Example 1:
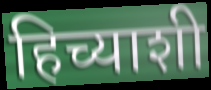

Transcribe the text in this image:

हिच्याशी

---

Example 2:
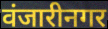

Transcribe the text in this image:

वंजारीनगर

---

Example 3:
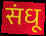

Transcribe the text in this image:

संधू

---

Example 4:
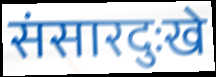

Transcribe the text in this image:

संसारदुःखे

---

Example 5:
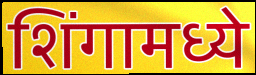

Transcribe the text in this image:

शिंगामध्ये